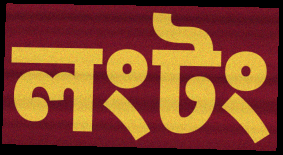
লংটং